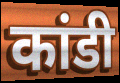
कांडी